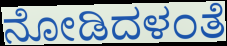
ನೋಡಿದಳಂತೆ